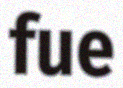
fue